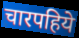
चारपहिये